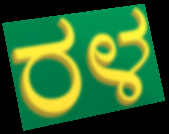
ರಳ